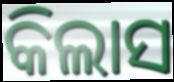
କିଲାସ